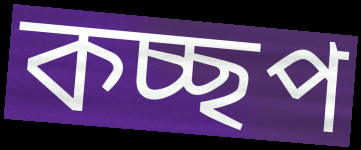
কচ্ছপ